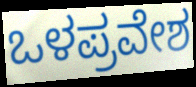
ಒಳಪ್ರವೇಶ